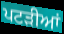
ਪਟਡ਼ੀਆਂ